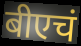
बीएचं